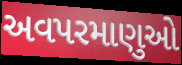
અવપરમાણુઓ